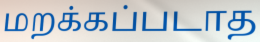
மறக்கப்படாத